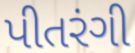
પીતરંગી